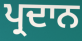
ਪ੍ਰਦਾਨ